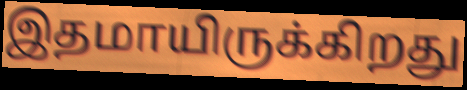
இதமாயிருக்கிறது